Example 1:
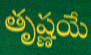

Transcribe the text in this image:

తృష్ణయే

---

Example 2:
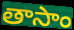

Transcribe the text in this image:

తాసాం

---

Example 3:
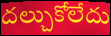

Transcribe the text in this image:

దల్చుకోలేదు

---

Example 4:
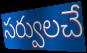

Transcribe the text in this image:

సర్వులచే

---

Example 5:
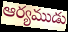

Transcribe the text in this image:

ఆర్యముడు